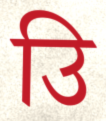
उि